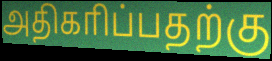
அதிகரிப்பதற்கு